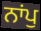
ਨਾਂਪੁ